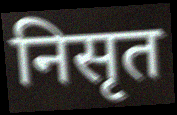
निसृत